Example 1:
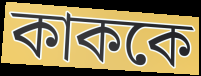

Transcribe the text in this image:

কাককে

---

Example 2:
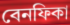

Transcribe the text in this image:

বেনফিকা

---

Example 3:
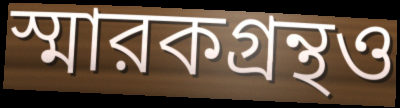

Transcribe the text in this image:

স্মারকগ্রন্থও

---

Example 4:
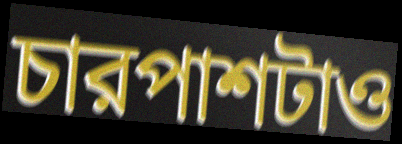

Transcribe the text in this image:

চারপাশটাও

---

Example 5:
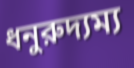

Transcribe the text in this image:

ধনুরুদ্যম্য